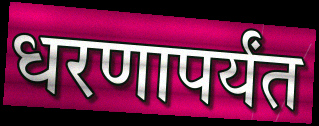
धरणापर्यंत